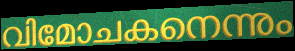
വിമോചകനെന്നും